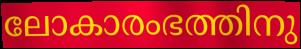
ലോകാരംഭത്തിനു